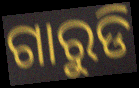
ଗାରୁଡି